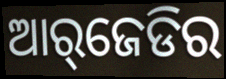
ଆର୍‌ଜେଡିର